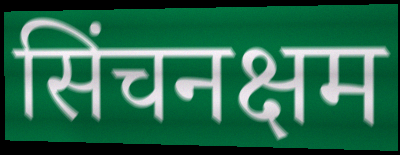
सिंचनक्षम